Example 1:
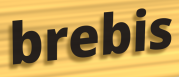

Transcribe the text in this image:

brebis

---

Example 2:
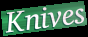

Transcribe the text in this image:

Knives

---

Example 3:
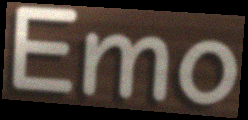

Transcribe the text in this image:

Emo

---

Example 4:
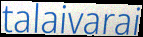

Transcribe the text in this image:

talaivarai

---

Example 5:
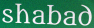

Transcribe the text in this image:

shabad